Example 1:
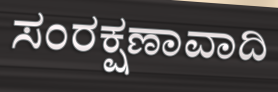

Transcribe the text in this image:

ಸಂರಕ್ಷಣಾವಾದಿ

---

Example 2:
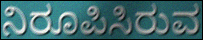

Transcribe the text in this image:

ನಿರೂಪಿಸಿರುವ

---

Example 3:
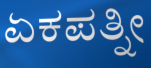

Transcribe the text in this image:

ಏಕಪತ್ನೀ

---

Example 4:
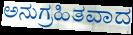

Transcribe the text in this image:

ಅನುಗ್ರಹಿತವಾದ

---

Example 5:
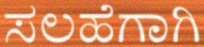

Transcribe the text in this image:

ಸಲಹೆಗಾಗಿ